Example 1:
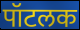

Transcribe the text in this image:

पॉटलक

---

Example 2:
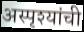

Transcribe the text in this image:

अस्पृश्यांची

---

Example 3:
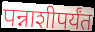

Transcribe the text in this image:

पन्नाशीपर्यंत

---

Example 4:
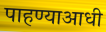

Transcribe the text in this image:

पाहण्याआधी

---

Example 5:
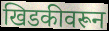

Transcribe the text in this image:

खिडकीवरून